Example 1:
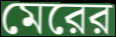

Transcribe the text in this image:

মেরের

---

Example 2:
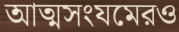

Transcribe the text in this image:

আত্মসংযমেরও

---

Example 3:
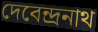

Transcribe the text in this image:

দেবেন্দ্রনাথ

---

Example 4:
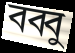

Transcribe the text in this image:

বব্বু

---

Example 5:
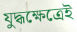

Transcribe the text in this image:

যুদ্ধক্ষেত্রেই